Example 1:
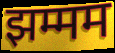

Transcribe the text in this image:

झम्मम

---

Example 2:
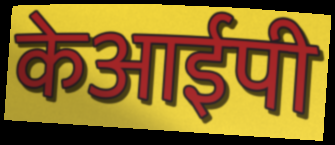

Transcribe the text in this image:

केआईपी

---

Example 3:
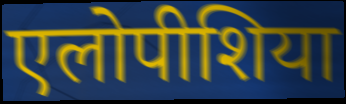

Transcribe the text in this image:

एलोपीशिया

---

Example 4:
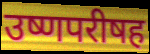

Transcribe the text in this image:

उष्णपरीषह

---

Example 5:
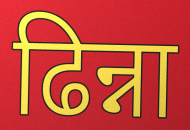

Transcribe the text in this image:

ढिन्ना